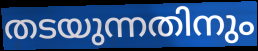
തടയുന്നതിനും